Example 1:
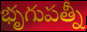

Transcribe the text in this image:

భృగుపత్నీ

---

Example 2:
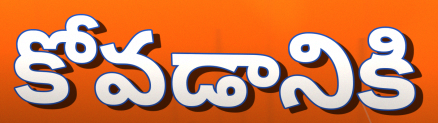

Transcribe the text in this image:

కోవడానికి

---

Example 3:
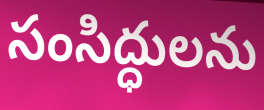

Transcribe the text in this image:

సంసిద్ధులను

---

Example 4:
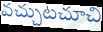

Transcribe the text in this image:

వచ్చుటచూచి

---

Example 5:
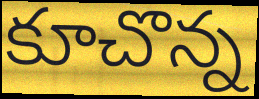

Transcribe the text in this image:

కూచొన్న